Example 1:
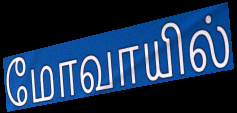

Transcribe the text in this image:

மோவாயில்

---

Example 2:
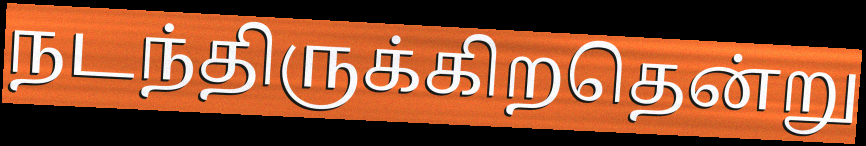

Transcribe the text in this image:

நடந்திருக்கிறதென்று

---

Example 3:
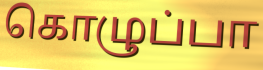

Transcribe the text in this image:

கொழுப்பா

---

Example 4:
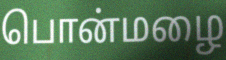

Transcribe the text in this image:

பொன்மழை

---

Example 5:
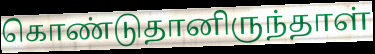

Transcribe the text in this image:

கொண்டுதானிருந்தாள்